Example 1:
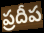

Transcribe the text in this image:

ప్రదీప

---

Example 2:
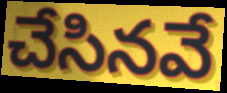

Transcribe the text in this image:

చేసినవే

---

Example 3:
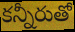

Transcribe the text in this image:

కన్నీరుతో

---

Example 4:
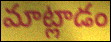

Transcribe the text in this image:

మాట్లాడం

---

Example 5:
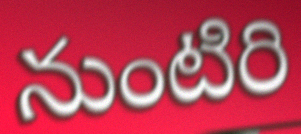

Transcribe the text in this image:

నుంటిరి